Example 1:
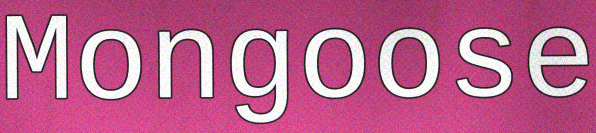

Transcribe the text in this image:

Mongoose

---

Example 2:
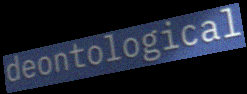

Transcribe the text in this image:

deontological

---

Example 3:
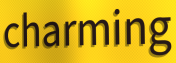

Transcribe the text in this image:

charming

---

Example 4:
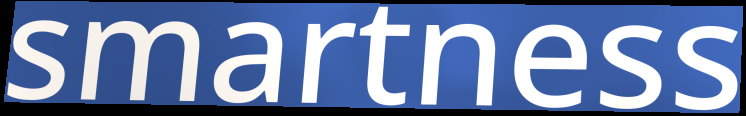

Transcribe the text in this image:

smartness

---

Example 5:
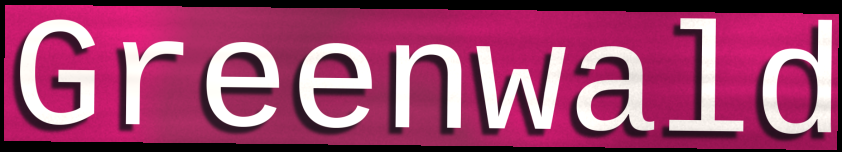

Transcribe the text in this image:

Greenwald